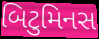
બિટુમિનસ